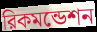
রিকমন্ডেশন